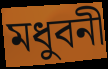
মধুবনী